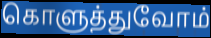
கொளுத்துவோம்